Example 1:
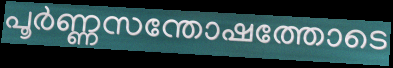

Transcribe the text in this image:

പൂർണ്ണസന്തോഷത്തോടെ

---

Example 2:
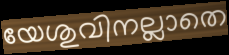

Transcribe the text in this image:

യേശുവിനല്ലാതെ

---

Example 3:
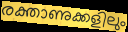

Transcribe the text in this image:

രക്താണുക്കളിലും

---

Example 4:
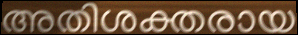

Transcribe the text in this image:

അതിശക്തരായ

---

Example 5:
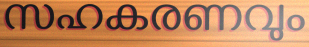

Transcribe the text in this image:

സഹകരണവും